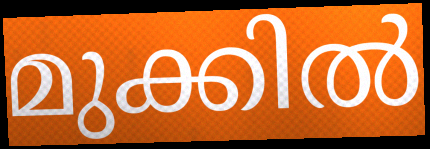
മുക്കിൽ